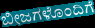
ಬೀಜಗಳೊಂದಿಗೆ